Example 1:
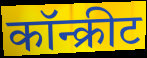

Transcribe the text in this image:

कॉन्क्रीट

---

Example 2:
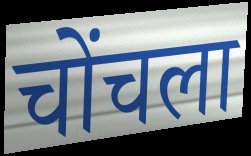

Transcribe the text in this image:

चोंचला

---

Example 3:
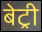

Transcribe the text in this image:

बेट्री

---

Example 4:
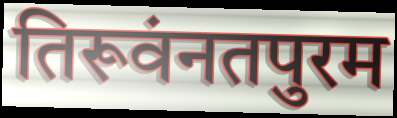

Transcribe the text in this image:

तिरूवंनतपुरम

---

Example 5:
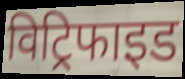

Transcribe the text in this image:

विट्रिफाइड